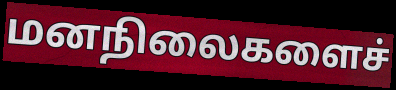
மனநிலைகளைச்